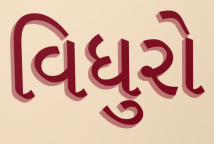
વિધુરો